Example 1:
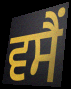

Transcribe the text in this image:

ਵਸੈਂ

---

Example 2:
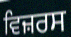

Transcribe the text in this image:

ਵਿਜ਼ਰਸ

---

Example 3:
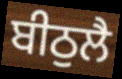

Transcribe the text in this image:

ਬੀਠੁਲੈ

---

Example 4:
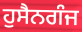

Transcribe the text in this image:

ਹੁਸੈਨਗੰਜ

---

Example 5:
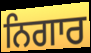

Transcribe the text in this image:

ਨਿਗਾਰ